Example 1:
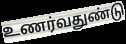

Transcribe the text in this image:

உணர்வதுண்டு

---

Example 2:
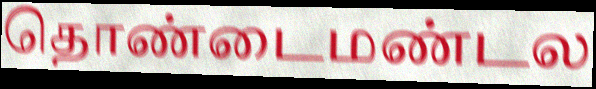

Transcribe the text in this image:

தொண்டைமண்டல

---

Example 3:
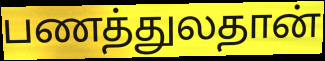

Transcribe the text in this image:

பணத்துலதான்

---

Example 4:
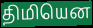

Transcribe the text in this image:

திமியென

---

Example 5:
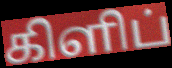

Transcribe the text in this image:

கிளிப்